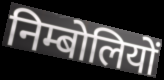
निम्बोलियों